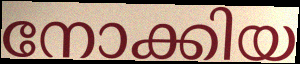
നോക്കിയ